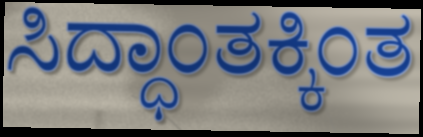
ಸಿದ್ಧಾಂತಕ್ಕಿಂತ